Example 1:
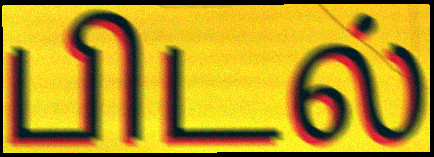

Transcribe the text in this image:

பிடல்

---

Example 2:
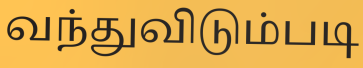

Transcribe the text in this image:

வந்துவிடும்படி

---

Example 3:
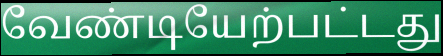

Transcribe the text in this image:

வேண்டியேற்பட்டது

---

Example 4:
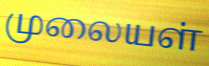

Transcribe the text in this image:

முலையள்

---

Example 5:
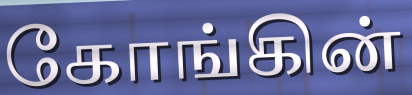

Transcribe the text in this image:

கோங்கின்